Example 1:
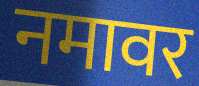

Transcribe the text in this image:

नमावर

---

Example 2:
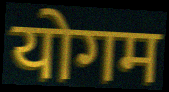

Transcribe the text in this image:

योगम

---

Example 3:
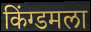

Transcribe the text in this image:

किंग्डमला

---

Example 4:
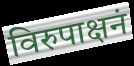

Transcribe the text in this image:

विरुपाक्षनं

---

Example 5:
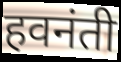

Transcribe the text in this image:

हवनंती